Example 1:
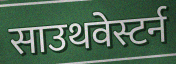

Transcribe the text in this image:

साउथवेस्टर्न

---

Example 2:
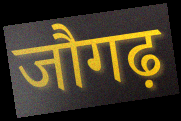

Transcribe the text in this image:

जौगढ़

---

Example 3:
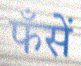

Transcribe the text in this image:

फँसें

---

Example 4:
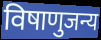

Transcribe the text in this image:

विषाणुजन्य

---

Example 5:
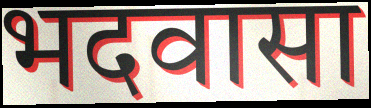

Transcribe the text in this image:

भदवासा